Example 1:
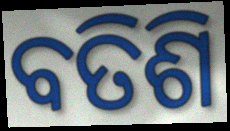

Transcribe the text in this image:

ବତିଶି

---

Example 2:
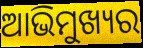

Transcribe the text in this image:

ଆଭିମୁଖ୍ୟର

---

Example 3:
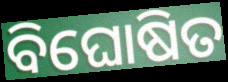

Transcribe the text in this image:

ବିଘୋଷିତ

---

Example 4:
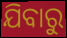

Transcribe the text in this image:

ଯିବାରୁ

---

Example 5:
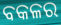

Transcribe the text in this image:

ବକଳର